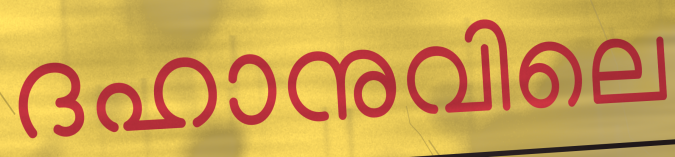
ദഹാനുവിലെ